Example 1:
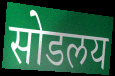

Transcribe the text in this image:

सोडलय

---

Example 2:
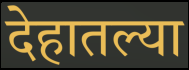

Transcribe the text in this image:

देहातल्या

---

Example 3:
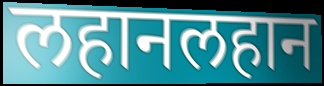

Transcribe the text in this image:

लहानलहान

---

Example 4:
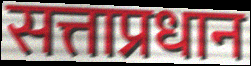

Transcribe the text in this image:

सत्ताप्रधान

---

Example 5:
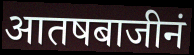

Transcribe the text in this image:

आतषबाजीनं